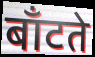
बाँटते